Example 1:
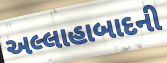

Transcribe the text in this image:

અલ્લાહાબાદની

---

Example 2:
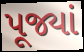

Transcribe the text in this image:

પૂજ્યાં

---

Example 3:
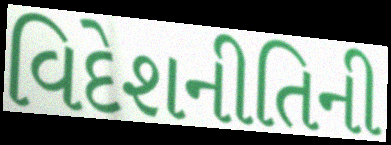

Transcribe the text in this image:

વિદેશનીતિની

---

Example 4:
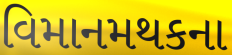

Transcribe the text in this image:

વિમાનમથકના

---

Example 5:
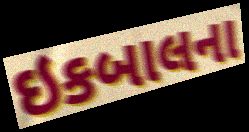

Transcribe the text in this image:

ઇકબાલના